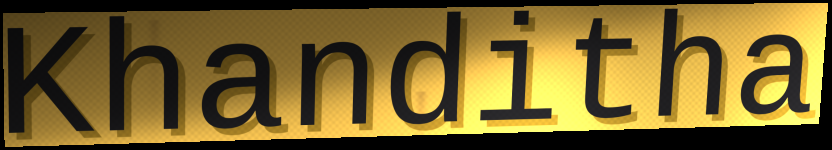
Khanditha